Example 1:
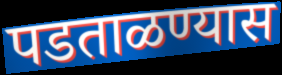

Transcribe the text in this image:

पडताळण्यास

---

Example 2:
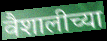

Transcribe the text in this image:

वैशालीच्या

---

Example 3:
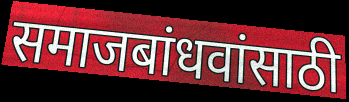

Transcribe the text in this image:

समाजबांधवांसाठी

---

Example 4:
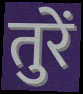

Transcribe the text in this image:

तुरें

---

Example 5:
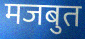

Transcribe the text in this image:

मजबुत